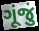
ગૂંજું